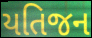
યતિજન